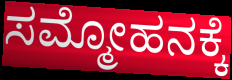
ಸಮ್ಮೋಹನಕ್ಕೆ